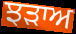
ਝੜਾਅ